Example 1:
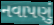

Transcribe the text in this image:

નવાપણું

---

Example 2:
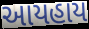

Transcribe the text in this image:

આયહાય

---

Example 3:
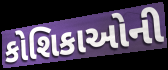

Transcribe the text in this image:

કોશિકાઓની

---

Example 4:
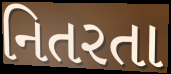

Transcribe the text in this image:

નિતરતા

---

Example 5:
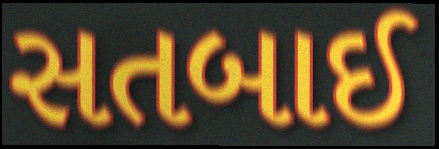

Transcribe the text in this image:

સતબાઈ